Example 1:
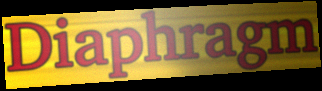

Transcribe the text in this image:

Diaphragm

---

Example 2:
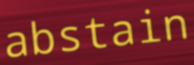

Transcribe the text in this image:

abstain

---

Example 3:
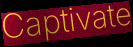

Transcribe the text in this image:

Captivate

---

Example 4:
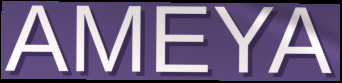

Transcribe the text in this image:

AMEYA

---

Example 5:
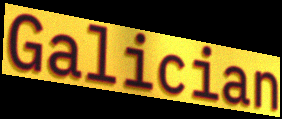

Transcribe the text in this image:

Galician